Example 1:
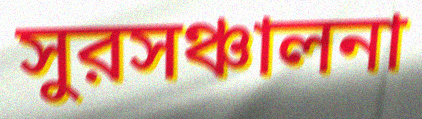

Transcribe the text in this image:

সুরসঞ্চালনা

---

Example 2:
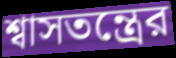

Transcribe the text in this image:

শ্বাসতন্ত্রের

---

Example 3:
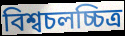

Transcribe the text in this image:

বিশ্বচলচ্চিত্র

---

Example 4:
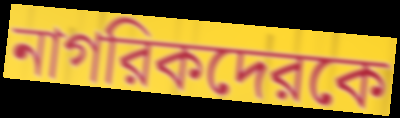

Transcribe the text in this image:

নাগরিকদেরকে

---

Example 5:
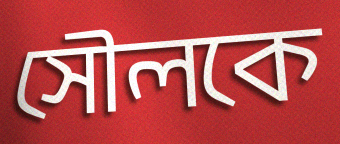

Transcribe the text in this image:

সৌলকে